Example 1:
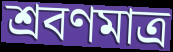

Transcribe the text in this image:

শ্রবণমাত্র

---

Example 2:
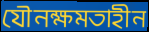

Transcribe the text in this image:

যৌনক্ষমতাহীন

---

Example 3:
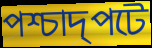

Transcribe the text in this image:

পশ্চাদ্‌পটে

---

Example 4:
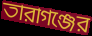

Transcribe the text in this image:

তারাগঞ্জের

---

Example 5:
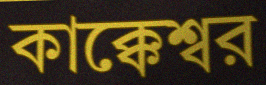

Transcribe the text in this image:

কাক্কেশ্বর